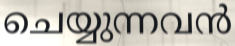
ചെയ്യുന്നവൻ